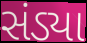
સંડ્યા